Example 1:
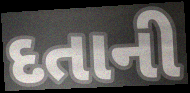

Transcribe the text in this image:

દતાની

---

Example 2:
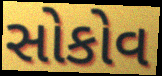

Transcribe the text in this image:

સોકોવ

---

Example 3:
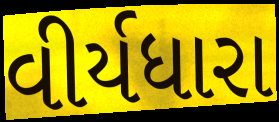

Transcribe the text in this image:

વીર્યધારા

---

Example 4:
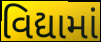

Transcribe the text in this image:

વિદ્યામાં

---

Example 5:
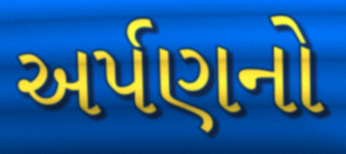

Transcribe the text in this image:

અર્પણનો